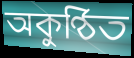
অকুণ্ঠিত